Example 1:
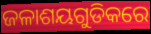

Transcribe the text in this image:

ଜଳାଶୟଗୁଡିକରେ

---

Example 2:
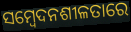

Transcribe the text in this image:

ସମ୍ବେଦନଶୀଳତାରେ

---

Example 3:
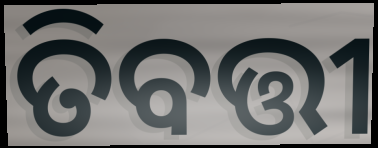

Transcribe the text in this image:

ତିବତ୍ତୀ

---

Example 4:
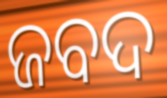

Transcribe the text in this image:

ଜବଦ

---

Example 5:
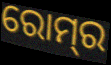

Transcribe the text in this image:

ରୋମ୍‍ର